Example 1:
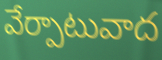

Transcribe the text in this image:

వేర్పాటువాద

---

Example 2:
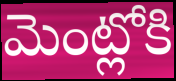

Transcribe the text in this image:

మెంట్లోకి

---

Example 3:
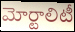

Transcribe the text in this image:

మోర్టాలిటీ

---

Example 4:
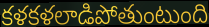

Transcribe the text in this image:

కళకళలాడిపోతుంటుంది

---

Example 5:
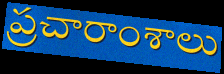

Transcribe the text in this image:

ప్రచారాంశాలు